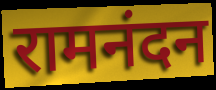
रामनंदन